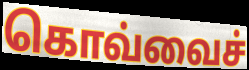
கொவ்வைச்